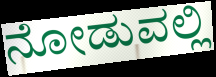
ನೋಡುವಲ್ಲಿ